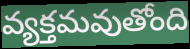
వ్యక్తమవుతోంది